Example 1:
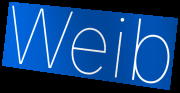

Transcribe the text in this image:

Weib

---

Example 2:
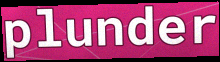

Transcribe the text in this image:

plunder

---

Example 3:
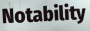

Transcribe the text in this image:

Notability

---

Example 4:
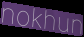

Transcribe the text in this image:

nokhun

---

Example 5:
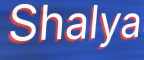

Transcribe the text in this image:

Shalya